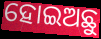
ହୋଇଅଛୁ